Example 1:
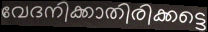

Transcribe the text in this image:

വേദനിക്കാതിരിക്കട്ടെ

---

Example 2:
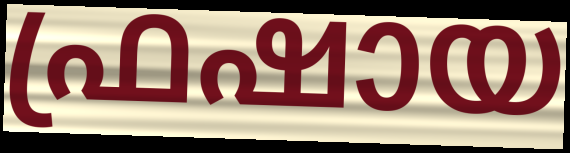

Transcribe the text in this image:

ഫ്രഷായ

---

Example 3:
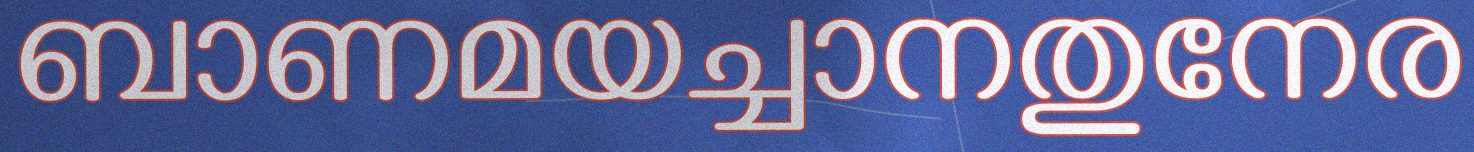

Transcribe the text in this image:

ബാണമയച്ചാനതുനേര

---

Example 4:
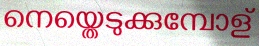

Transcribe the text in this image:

നെയ്തെടുക്കുമ്പോള്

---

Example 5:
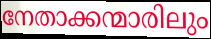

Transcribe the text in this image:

നേതാക്കന്മാരിലും